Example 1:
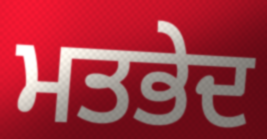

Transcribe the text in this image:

ਮਤਭੇਦ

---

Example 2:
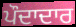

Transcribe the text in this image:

ਪੌਦਾਦਾਰ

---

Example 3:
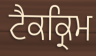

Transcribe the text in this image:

ਟੈਕਕ੍ਰਿਮ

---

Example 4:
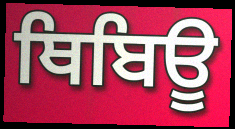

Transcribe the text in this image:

ਥਿਬਿਊ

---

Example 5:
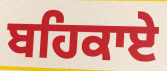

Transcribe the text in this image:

ਬਹਿਕਾਏ